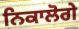
ਨਿਕਾਲੋਗੇ